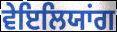
ਵੇਇਲਿਯਾਂਗ